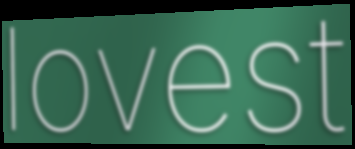
lovest